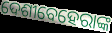
ଦେଶୀବେହେରାଙ୍କ